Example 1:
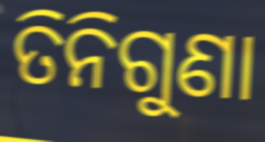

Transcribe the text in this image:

ତିନିଗୁଣା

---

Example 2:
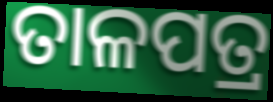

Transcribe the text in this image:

ତାଳପତ୍ର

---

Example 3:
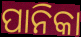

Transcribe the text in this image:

ପାନିକା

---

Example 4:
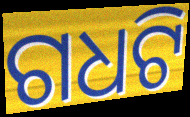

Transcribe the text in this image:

ଗଧଟି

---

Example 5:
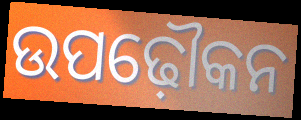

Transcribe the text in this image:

ଉପଢ଼ୌକନ